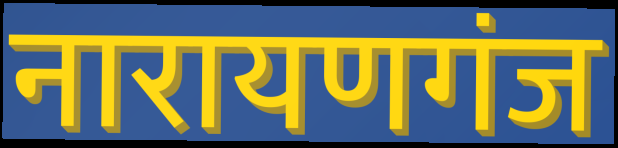
नारायणगंज